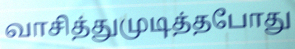
வாசித்துமுடித்தபோது